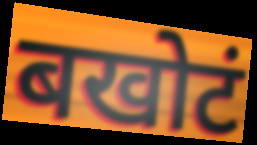
बखोटं